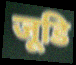
जूडि